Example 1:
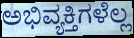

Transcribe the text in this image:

ಅಭಿವ್ಯಕ್ತಿಗಳೆಲ್ಲ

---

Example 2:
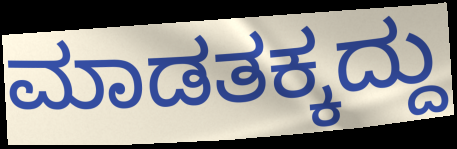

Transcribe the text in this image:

ಮಾಡತಕ್ಕದ್ದು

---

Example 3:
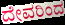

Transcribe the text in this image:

ದೇವರಿಂದ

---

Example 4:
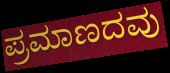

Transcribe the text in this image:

ಪ್ರಮಾಣದವು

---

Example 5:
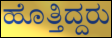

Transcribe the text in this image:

ಹೊತ್ತಿದ್ದರು